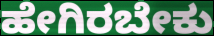
ಹೇಗಿರಬೇಕು